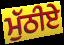
ਮੁੱਠੀਏ